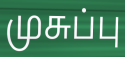
முசுப்பு